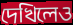
দেখিলেও